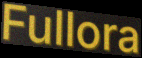
Fullora